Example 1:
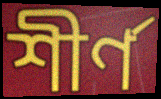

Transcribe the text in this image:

শীর্ণ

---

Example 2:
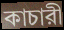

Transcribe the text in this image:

কাচারী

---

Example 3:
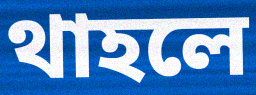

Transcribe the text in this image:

থাহলে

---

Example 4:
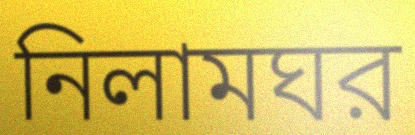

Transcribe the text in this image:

নিলামঘর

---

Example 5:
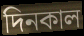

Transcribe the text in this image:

দিনকাল